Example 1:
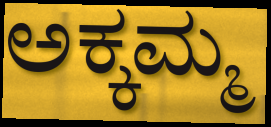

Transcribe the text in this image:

ಅಕ್ಕಮ್ಮ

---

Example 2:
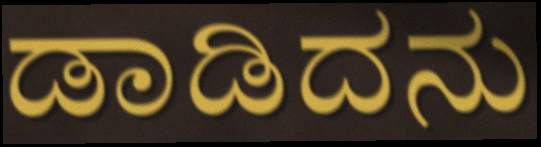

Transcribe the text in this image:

ಡಾಡಿದನು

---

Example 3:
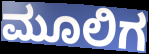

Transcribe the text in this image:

ಮೂಲಿಗ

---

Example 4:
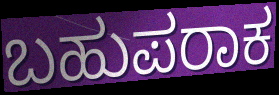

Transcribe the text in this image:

ಬಹುಪರಾಕ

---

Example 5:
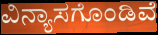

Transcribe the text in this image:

ವಿನ್ಯಾಸಗೊಂಡಿವೆ